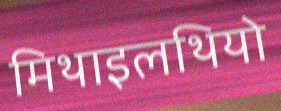
मिथाइलथियो